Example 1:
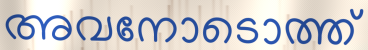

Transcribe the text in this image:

അവനോടൊത്ത്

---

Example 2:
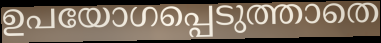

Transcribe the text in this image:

ഉപയോഗപ്പെടുത്താതെ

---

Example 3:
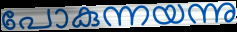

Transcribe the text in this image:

പോകുന്നയന്നു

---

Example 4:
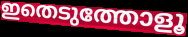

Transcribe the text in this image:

ഇതെടുത്തോളൂ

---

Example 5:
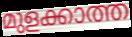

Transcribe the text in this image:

മുളക്കാത്ത